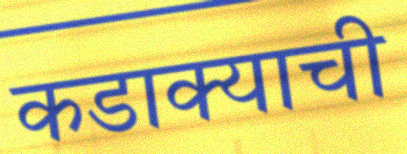
कडाक्याची